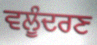
ਵਲੂੰਦਰਣ